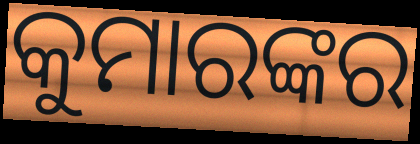
କୁମାରଙ୍କର